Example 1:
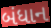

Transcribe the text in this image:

બંધાન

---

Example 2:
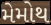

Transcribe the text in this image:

મેમોથ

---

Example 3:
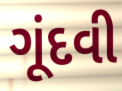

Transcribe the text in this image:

ગૂંદવી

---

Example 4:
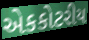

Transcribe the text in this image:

એકકોટરીય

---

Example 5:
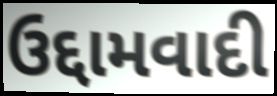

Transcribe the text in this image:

ઉદ્દામવાદી